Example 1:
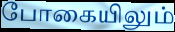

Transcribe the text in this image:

போகையிலும்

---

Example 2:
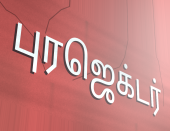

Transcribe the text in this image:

புரஜெக்டர்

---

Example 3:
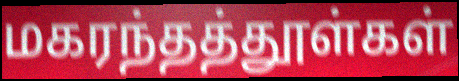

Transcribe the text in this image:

மகரந்தத்தூள்கள்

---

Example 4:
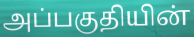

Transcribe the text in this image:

அப்பகுதியின்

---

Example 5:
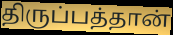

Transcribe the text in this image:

திருப்பத்தான்